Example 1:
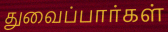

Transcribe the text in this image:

துவைப்பார்கள்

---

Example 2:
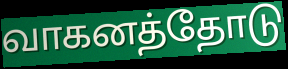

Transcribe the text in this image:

வாகனத்தோடு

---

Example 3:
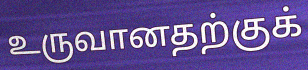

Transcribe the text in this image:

உருவானதற்குக்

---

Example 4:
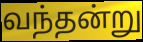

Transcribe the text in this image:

வந்தன்று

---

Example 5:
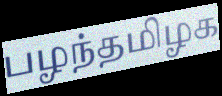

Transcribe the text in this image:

பழந்தமிழக